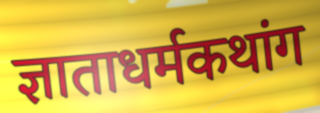
ज्ञाताधर्मकथांग